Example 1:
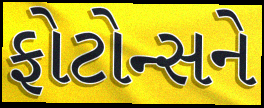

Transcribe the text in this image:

ફોટોન્સને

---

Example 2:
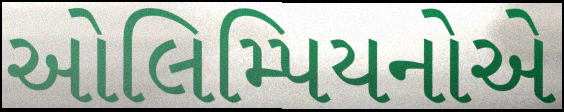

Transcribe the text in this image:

ઓલિમ્પિયનોએ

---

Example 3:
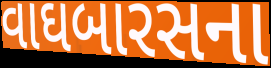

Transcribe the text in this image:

વાઘબારસના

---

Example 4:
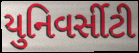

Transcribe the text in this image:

યુનિવર્સીટી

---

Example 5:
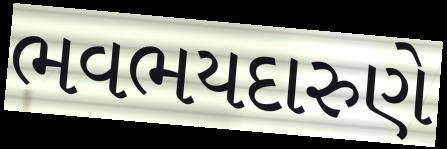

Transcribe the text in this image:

ભવભયદારુણે